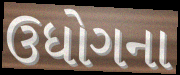
ઉધોગના